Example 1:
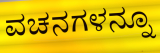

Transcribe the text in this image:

ವಚನಗಳನ್ನೂ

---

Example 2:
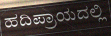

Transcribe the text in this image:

ಹದಿಪ್ರಾಯದಲ್ಲಿ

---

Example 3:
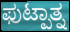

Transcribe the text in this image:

ಫುಟ್ಪಾತ್ನ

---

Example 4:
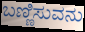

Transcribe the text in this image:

ಬಣ್ಣಿಸುವನು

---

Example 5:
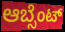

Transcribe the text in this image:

ಆಬ್ಸೆಂಟ್